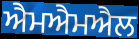
ਐਮਐਮਐਲ